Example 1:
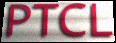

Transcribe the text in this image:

PTCL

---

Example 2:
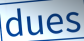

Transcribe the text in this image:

dues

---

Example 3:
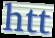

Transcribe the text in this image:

htt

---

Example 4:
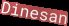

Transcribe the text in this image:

Dinesan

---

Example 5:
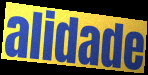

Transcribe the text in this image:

alidade